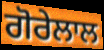
ਗੋਰੇਲਾਲ